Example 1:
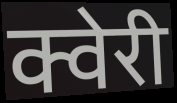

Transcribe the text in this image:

क्वेरी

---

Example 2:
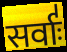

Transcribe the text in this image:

सर्वाः॑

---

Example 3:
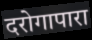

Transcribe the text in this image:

दरोगापारा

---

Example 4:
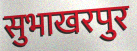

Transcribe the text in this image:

सुभाखरपुर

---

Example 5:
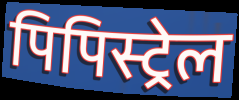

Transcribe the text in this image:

पिपिस्ट्रेल